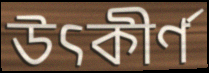
উৎকীর্ণ